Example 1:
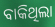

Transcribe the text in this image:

ବାକିଥିଲା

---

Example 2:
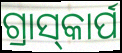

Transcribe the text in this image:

ଗ୍ରାସ୍‌କାର୍ପ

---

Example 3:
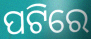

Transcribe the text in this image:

ପଟିରେ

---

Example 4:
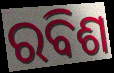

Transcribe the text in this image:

ରବିଶ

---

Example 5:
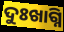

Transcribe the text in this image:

ଦୁଃଖାଗ୍ନି